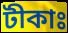
টীকাঃ